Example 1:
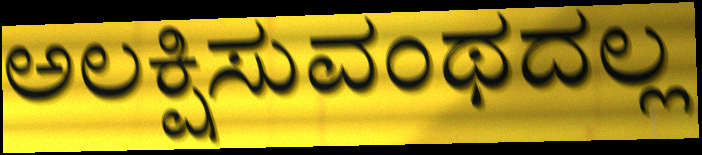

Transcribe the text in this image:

ಅಲಕ್ಷಿಸುವಂಥದಲ್ಲ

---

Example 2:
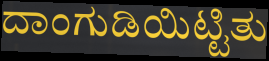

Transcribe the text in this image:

ದಾಂಗುಡಿಯಿಟ್ಟಿತು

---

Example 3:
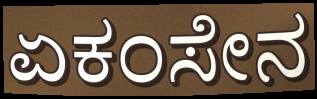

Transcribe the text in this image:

ಏಕಂಸೇನ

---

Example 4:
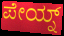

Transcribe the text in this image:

ಪೇಯ್ನ್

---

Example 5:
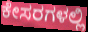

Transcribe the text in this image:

ಕೇಸರಗಳಲ್ಲಿ